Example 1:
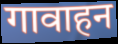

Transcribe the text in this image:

गावाहन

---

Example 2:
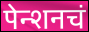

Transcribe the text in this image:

पेन्शनचं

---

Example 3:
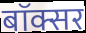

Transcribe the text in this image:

बॉक्सर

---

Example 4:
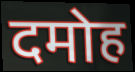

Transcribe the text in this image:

दमोह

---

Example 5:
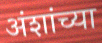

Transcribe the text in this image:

अंशांच्या